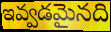
ఇవ్వడమైనది